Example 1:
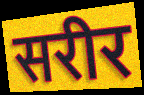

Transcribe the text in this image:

सरीर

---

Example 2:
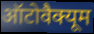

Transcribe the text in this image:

ऑटोवैक्यूम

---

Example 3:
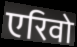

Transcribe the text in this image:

एरिवो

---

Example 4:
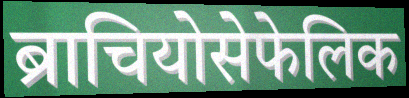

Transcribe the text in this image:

ब्राचियोसेफेलिक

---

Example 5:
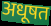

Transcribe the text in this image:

अधूषत